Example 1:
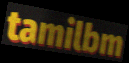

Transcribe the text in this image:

tamilbm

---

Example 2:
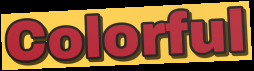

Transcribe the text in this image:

Colorful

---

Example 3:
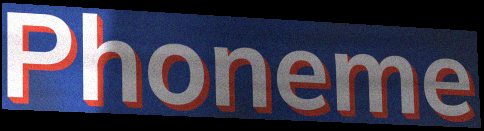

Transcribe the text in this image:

Phoneme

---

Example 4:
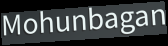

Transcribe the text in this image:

Mohunbagan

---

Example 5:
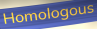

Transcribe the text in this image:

Homologous